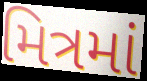
મિત્રમાં